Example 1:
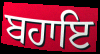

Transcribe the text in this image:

ਬਹਾਇ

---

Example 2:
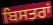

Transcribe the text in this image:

ਬਿਸਤਰਾਂ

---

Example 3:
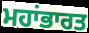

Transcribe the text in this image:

ਮਹਾਂਭਾਰਤ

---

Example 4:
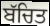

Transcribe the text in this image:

ਬੱਚਿਤ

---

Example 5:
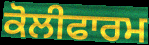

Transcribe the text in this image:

ਕੋਲੀਫਾਰਮ